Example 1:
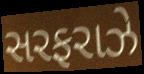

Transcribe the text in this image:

સરફરાઝે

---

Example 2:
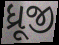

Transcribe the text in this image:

ધ્રૂજી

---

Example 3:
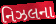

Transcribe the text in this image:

નિઝલના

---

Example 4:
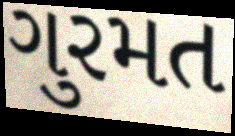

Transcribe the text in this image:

ગુરમત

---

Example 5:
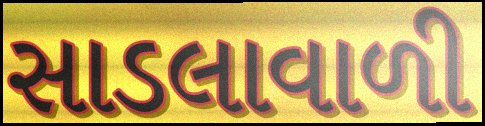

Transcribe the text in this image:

સાડલાવાળી